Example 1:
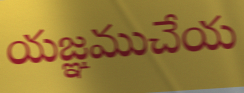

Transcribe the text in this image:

యజ్ఞముచేయ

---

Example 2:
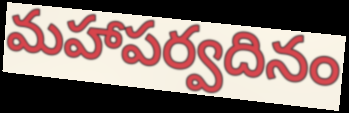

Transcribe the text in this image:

మహాపర్వదినం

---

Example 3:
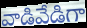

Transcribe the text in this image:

వాడివేడిగా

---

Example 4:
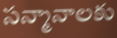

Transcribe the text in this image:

సన్మానాలకు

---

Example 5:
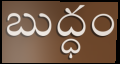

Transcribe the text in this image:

బుద్ధం